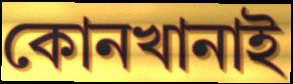
কোনখানাই